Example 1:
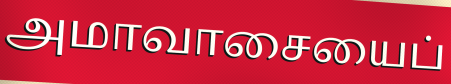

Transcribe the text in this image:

அமாவாசையைப்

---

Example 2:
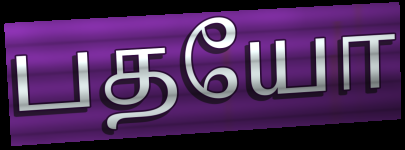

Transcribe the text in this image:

பதயோ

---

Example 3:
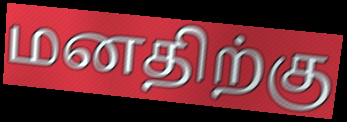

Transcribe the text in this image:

மனதிற்கு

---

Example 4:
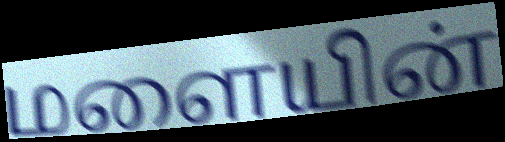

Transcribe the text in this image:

மளையின்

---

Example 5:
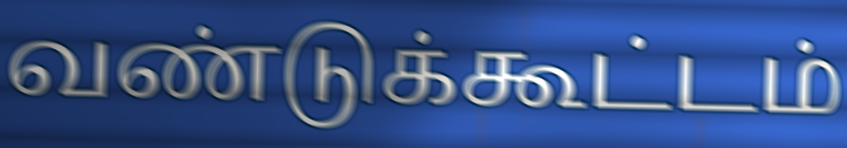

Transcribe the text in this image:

வண்டுக்கூட்டம்